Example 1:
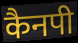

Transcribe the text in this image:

कैनपी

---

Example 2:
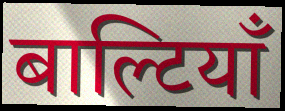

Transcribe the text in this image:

बाल्टियाँ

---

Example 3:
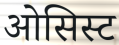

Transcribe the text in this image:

ओसिस्ट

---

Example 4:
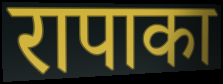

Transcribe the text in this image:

रापाका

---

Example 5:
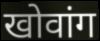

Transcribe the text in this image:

खोवांग